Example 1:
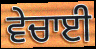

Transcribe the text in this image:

ਵੇਚਾਈ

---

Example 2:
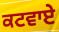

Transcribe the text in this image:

ਕਟਵਾਏ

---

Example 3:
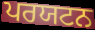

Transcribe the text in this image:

ਪਰਯਟਨ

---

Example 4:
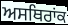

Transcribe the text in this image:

ਅਸਥਿਰਾਂਕ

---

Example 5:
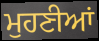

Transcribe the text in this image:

ਮੁਹਣੀਆਂ